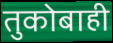
तुकोबाही